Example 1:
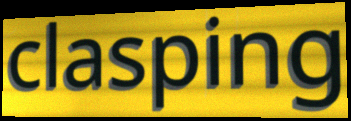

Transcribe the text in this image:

clasping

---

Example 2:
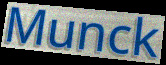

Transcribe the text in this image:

Munck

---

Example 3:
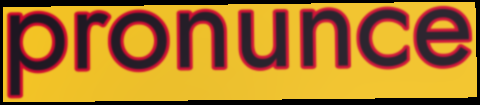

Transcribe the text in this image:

pronunce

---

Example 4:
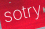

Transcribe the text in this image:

sotry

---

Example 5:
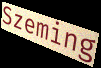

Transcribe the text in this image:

Szeming